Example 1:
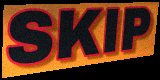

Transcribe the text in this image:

SKIP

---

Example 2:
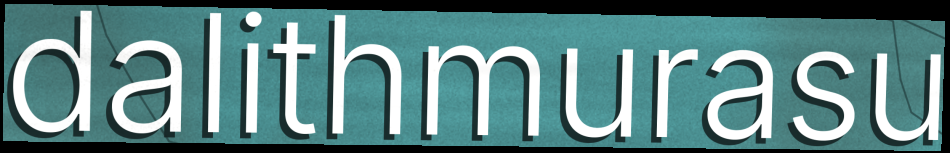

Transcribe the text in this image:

dalithmurasu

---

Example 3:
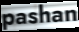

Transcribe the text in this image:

pashan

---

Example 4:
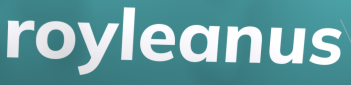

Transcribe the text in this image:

royleanus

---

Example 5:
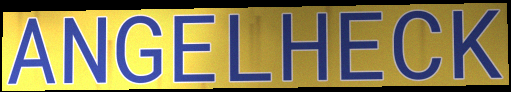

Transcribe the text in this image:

ANGELHECK